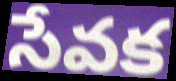
సేవక